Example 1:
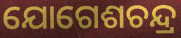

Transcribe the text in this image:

ଯୋଗେଶଚନ୍ଦ୍ର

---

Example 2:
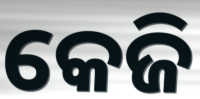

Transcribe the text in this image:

କେଜି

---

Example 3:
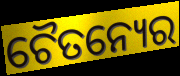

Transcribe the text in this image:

ଚୈତନ୍ୟେର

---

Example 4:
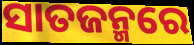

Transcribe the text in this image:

ସାତଜନ୍ମରେ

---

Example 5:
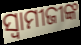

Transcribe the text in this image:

ସ୍ଵାମୀଜୀଙ୍କ